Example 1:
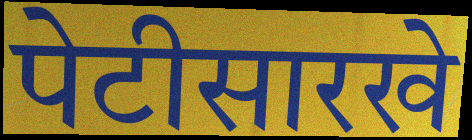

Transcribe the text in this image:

पेटीसारखे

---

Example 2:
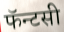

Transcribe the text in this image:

फॅन्टसी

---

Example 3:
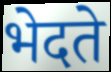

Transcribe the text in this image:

भेदते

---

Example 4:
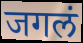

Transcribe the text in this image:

जगलं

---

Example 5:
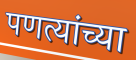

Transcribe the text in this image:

पणत्यांच्या